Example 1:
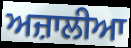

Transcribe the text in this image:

ਅਜ਼ਾਲੀਆ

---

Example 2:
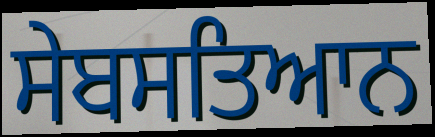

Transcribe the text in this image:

ਸੇਬਸਤਿਆਨ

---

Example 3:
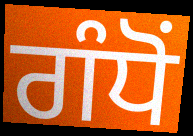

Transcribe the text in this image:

ਗੰਧੋਂ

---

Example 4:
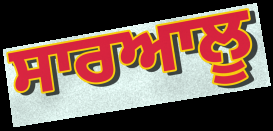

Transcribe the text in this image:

ਸਾਰਆਲੂ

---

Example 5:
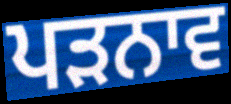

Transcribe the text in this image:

ਪੜਨਾਵ